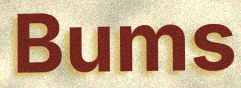
Bums